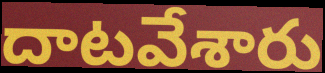
దాటవేశారు